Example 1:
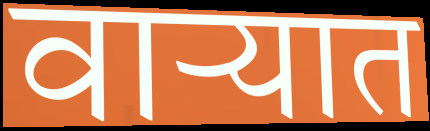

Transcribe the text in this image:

वाऱ्यात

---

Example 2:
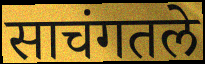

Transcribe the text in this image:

साचंगतले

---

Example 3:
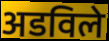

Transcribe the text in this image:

अडविले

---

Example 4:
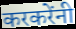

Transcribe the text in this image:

करकरेंनी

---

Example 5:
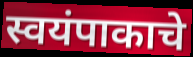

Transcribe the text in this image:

स्वयंपाकाचे